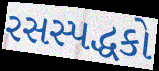
રસસ્પદ્ધકો